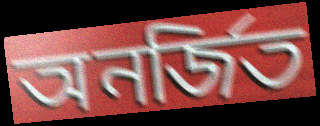
অনর্জিত